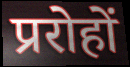
प्ररोहों